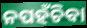
ନପହଁଚିବା